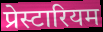
प्रेस्टारियम